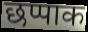
छप्पाक